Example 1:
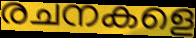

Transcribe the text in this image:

രചനകളെ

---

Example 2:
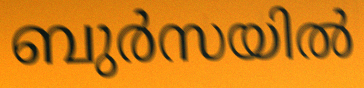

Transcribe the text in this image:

ബുർസയിൽ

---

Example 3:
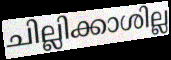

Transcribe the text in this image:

ചില്ലിക്കാശില്ല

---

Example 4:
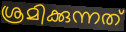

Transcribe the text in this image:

ശ്രമിക്കുന്നത്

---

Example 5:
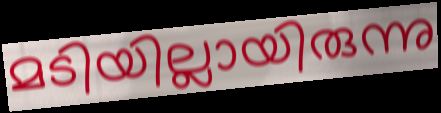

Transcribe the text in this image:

മടിയില്ലായിരുന്നു